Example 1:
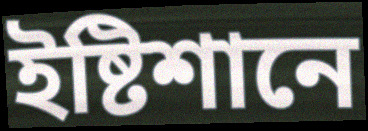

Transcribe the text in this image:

ইষ্টিশানে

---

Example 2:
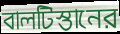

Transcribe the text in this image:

বালটিস্তানের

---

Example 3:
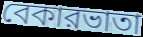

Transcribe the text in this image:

বেকারভাতা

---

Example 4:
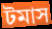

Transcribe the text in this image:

টমাস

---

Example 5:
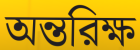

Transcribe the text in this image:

অন্তরিক্ষ